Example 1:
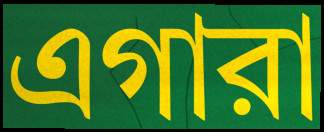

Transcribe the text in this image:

এগারা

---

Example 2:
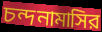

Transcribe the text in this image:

চন্দনামাসির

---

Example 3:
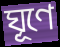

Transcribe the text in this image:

ঘূণে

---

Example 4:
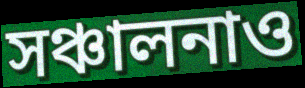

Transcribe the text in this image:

সঞ্চালনাও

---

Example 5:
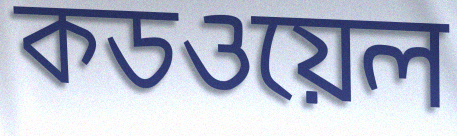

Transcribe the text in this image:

কডওয়েল